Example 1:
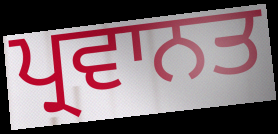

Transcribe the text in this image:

ਪ੍ਰਵਾਨਤ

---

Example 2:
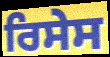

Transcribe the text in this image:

ਰਿਸੇਸ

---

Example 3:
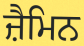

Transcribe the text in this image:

ਜ਼ੈਮਿਨ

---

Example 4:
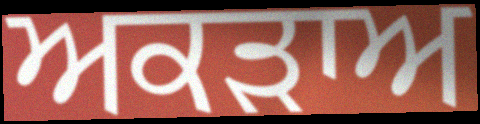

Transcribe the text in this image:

ਅਕੜਾਅ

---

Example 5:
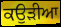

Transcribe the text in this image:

ਕਉੜੀਆ